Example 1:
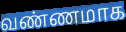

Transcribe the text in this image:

வண்ணமாக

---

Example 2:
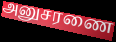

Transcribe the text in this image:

அனுசரணை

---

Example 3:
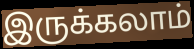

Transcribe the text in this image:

இருக்கலாம்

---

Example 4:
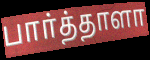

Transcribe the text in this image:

பார்த்தாளா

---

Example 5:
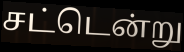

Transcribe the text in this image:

சட்டென்று